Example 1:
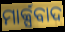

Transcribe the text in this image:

ମାର୍କ୍ସବାଦ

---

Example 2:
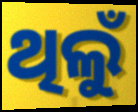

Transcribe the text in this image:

ଥିଲୁଁ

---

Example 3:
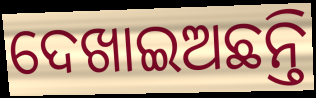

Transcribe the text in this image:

ଦେଖାଇଅଛନ୍ତି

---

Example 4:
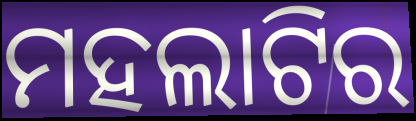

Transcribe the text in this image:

ମହଲାଟିର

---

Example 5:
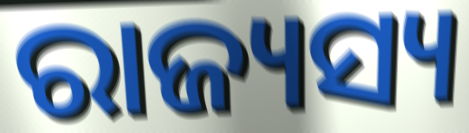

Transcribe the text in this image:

ରାଜ୍ୟସ୍ୟ